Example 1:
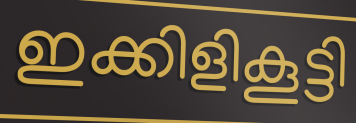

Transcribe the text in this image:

ഇക്കിളികൂട്ടി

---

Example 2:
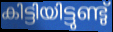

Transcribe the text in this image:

കിട്ടിയിട്ടുണ്ടു്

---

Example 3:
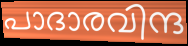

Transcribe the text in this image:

പാദാരവിന്ദ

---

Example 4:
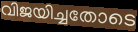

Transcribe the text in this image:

വിജയിച്ചതോടെ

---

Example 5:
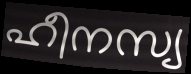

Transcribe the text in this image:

ഹീനസ്യ